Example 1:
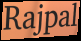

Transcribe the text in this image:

Rajpal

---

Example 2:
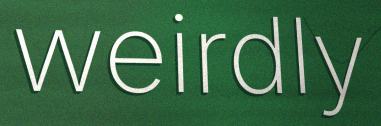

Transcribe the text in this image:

weirdly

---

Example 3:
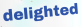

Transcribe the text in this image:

delighted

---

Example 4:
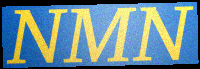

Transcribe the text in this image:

NMN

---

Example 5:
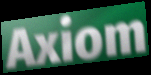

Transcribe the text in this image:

Axiom